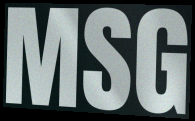
MSG